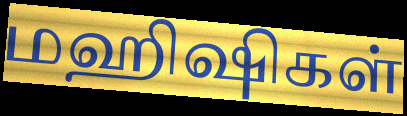
மஹிஷிகள்